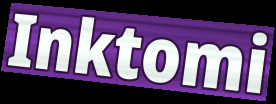
Inktomi